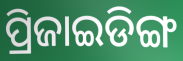
ପ୍ରିଜାଇଡିଙ୍ଗ